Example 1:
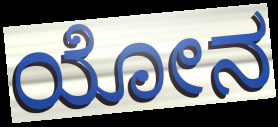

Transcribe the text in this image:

ಯೋನ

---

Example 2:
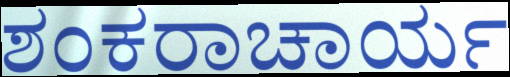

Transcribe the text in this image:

ಶಂಕರಾಚಾರ್ಯ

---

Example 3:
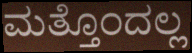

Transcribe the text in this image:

ಮತ್ತೊಂದಲ್ಲ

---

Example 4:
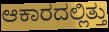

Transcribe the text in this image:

ಆಕಾರದಲ್ಲಿತ್ತು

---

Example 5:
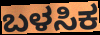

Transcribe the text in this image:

ಬಳಸಿಕ